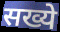
सख्ये